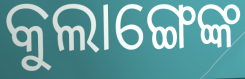
କୁଲାଙ୍ଗେଙ୍କ